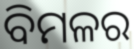
ବିମଳର